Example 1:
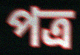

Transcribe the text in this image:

পত্ৰ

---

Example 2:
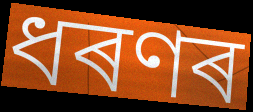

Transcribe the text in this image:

ধৰণৰ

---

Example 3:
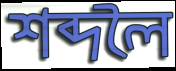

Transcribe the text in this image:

শব্দলৈ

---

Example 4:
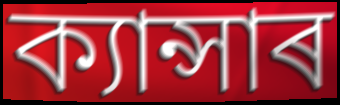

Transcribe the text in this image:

ক্যান্সাৰ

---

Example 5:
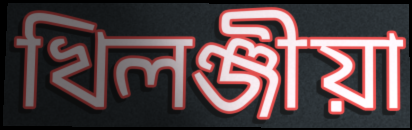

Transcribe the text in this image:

খিলঞ্জীয়া